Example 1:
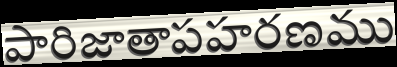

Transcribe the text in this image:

పారిజాతాపహరణము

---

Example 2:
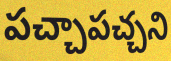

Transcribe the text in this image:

పచ్చాపచ్చని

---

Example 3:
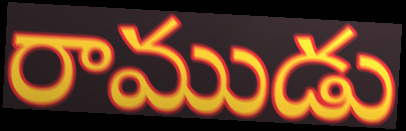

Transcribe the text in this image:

రాముడు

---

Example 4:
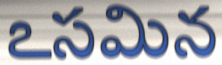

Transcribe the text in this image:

ఽసమిన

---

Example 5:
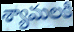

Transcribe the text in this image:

శ్యామలకి